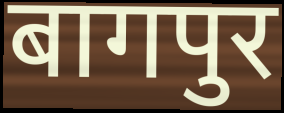
बागपुर